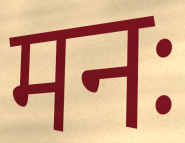
मनः